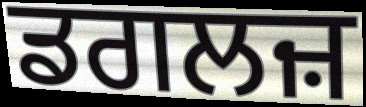
ਡਗਲਜ਼